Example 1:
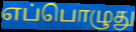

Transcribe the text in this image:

எப்பொழுது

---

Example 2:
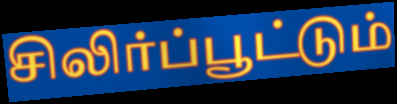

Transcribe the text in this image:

சிலிர்ப்பூட்டும்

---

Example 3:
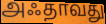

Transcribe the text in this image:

அஃதாவது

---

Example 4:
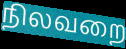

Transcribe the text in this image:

நிலவறை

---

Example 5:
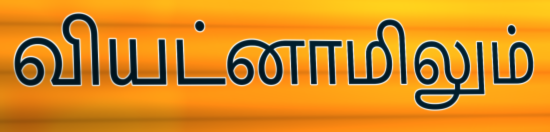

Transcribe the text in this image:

வியட்னாமிலும்